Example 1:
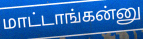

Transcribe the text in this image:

மாட்டாங்கன்னு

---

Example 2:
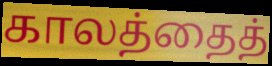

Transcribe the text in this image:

காலத்தைத்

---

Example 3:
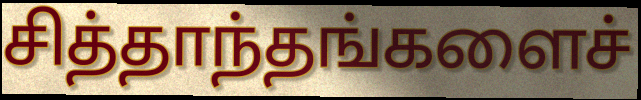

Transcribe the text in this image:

சித்தாந்தங்களைச்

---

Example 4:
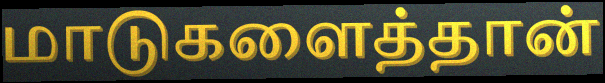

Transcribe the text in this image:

மாடுகளைத்தான்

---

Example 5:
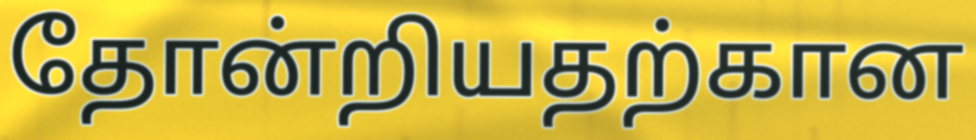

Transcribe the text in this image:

தோன்றியதற்கான